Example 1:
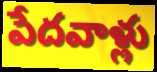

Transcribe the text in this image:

పేదవాళ్లు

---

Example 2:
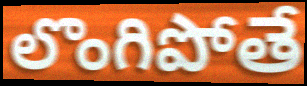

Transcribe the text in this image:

లొంగిపోతే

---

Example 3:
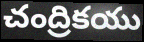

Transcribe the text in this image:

చంద్రికయు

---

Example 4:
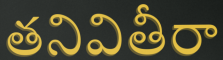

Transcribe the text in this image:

తనివితీరా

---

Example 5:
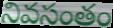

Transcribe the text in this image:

నివసంతం